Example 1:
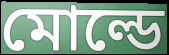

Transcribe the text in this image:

মোল্ডে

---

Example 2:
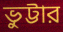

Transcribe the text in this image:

ভুট্টার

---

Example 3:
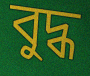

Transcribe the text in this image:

বুদ্ধ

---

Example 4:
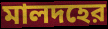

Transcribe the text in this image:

মালদহের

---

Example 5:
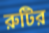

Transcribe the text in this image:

রুটির